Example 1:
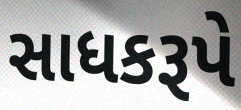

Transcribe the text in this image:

સાધકરૂપે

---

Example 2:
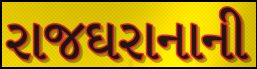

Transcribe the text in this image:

રાજઘરાનાની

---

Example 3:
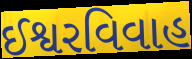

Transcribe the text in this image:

ઈશ્વરવિવાહ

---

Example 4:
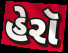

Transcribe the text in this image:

હેરૉ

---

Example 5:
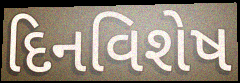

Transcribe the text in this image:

દિનવિશેષ